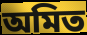
অমিত